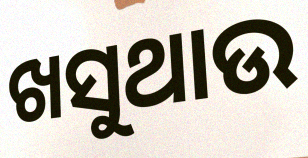
ଖସୁଥାଉ